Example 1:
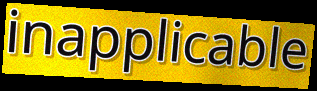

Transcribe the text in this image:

inapplicable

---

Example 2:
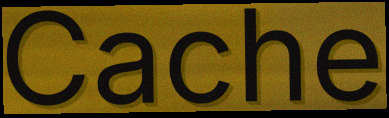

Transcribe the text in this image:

Cache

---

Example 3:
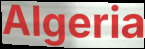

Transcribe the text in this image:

Algeria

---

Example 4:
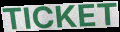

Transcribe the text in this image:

TICKET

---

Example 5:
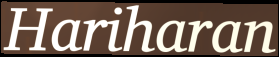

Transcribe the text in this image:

Hariharan